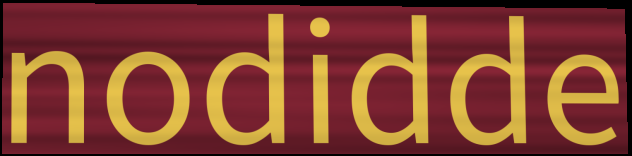
nodidde